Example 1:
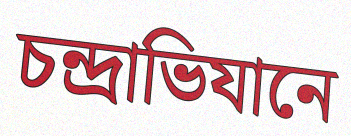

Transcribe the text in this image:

চন্দ্রাভিযানে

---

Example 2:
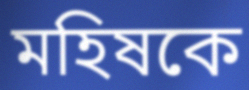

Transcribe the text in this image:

মহিষকে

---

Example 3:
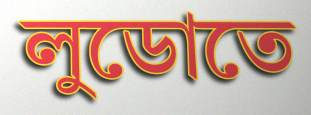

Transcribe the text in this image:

লুডোতে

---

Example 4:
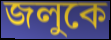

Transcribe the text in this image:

জলুকে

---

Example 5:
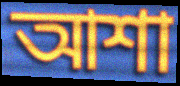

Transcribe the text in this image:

আশা